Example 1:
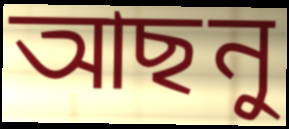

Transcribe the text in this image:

আছনু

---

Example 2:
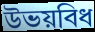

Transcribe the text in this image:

উভয়বিধ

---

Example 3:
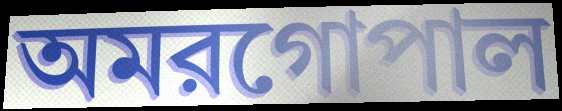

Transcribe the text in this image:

অমরগোপাল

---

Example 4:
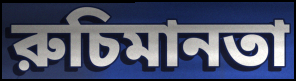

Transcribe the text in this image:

রুচিমানতা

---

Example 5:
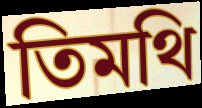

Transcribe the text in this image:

তিমথি